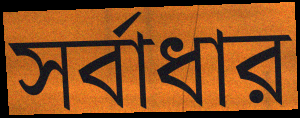
সর্বাধার